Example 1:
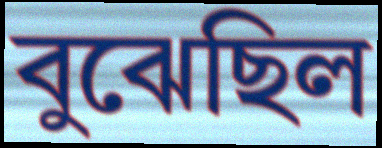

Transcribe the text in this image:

বুঝেছিল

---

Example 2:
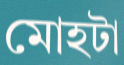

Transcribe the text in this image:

মোহটা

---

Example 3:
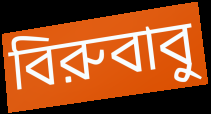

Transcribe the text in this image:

বিরুবাবু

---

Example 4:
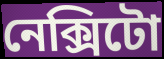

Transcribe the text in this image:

নেক্সিটো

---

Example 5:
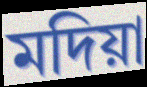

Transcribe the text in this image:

মদিয়া